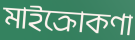
মাইক্রোকণা